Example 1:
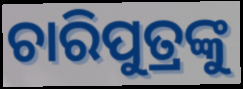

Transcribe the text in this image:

ଚାରିପୁତ୍ରଙ୍କୁ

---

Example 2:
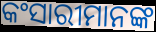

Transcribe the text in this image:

କଂସାରୀମାନଙ୍କ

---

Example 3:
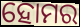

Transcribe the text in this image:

ହୋମର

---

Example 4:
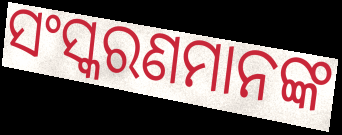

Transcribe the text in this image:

ସଂସ୍କରଣମାନଙ୍କ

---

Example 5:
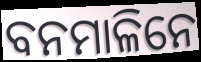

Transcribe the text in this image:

ବନମାଳିନେ